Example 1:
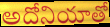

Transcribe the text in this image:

అదోనియాతో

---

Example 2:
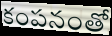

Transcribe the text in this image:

కంపనంతో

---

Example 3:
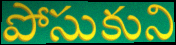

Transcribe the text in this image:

పోసుకుని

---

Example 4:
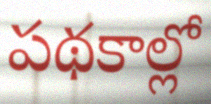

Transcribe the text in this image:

పథకాల్లో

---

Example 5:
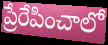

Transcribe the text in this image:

ప్రేరేపించాలో